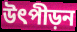
উৎপীড়ন